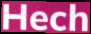
Hech